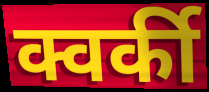
क्वर्की